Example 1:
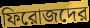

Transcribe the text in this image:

ফিরোজদের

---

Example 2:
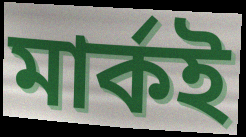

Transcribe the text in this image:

মার্কই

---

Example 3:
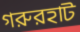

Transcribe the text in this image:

গরুরহাট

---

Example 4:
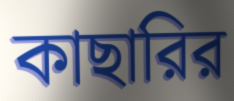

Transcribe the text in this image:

কাছারির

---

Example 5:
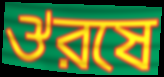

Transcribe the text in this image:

ঔরষে